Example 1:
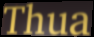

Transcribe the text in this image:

Thua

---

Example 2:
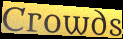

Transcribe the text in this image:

Crowds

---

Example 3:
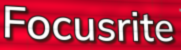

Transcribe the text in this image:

Focusrite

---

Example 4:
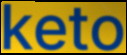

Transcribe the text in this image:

keto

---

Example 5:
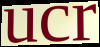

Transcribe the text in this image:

ucr